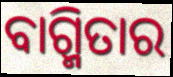
ବାଗ୍ମିତାର